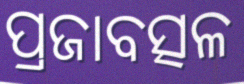
ପ୍ରଜାବତ୍ସଳ